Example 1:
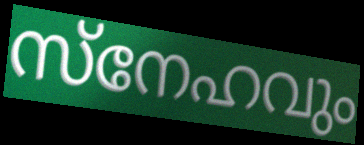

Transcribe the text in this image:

സ്നേഹവും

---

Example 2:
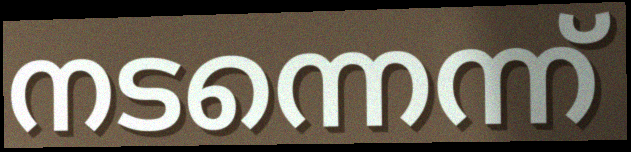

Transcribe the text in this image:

നടന്നെന്ന്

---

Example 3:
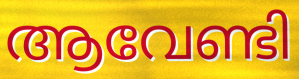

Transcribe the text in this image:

ആവേണ്ടി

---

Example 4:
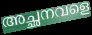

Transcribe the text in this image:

അച്ഛനവളെ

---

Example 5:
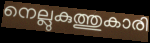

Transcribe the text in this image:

നെല്ലുകുത്തുകാരി